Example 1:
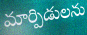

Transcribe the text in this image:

మార్పిడులను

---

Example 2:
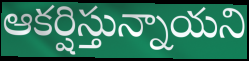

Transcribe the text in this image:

ఆకర్షిస్తున్నాయని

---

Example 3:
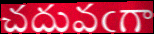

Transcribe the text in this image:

చదువఁగా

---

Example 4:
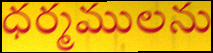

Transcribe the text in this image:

ధర్మములను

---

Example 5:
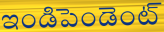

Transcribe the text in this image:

ఇండిపెండెంట్